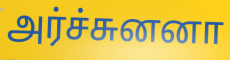
அர்ச்சுனனா